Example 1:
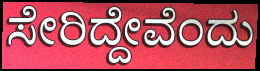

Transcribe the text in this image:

ಸೇರಿದ್ದೇವೆಂದು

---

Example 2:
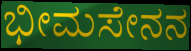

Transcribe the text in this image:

ಭೀಮಸೇನನ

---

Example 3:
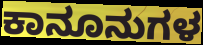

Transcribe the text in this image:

ಕಾನೂನುಗಳ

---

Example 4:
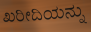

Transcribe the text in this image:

ಖರೀದಿಯನ್ನು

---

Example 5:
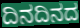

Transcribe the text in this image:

ದಿನದಿನದ